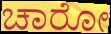
ಚಾರೋ